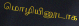
மொழியினூடாக